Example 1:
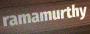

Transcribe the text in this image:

ramamurthy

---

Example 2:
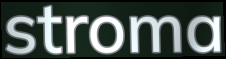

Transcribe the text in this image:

stroma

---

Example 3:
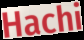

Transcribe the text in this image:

Hachi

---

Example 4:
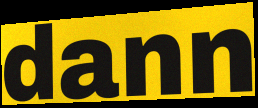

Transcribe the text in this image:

dann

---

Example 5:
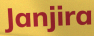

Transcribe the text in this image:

Janjira